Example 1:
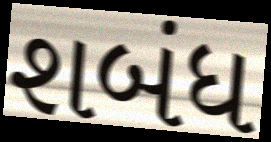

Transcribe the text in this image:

શબંધ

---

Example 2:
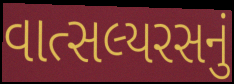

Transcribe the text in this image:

વાત્સલ્યરસનું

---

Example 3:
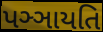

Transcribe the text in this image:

પઞ્ઞાયતિ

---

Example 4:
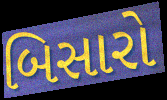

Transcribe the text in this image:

બિસારો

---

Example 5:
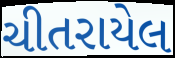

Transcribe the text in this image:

ચીતરાયેલ